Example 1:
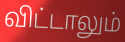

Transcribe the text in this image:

விட்டாலும்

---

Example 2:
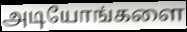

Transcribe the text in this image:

அடியோங்களை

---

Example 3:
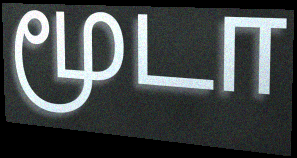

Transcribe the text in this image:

மூடா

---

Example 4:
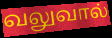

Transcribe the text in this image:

வலுவால்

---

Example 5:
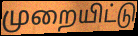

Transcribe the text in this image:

முறையிட்டு